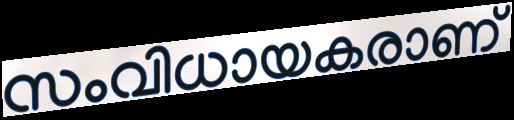
സംവിധായകരാണ്